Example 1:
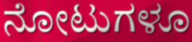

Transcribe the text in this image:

ನೋಟುಗಳೂ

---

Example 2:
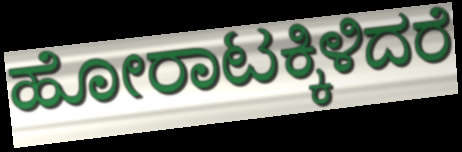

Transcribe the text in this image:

ಹೋರಾಟಕ್ಕಿಳಿದರೆ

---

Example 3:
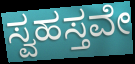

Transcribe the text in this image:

ಸ್ವಹಸ್ತವೇ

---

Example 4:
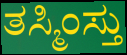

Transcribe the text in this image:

ತಸ್ಮಿಂಸ್ತು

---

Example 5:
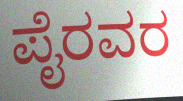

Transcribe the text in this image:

ಪೈರವರ